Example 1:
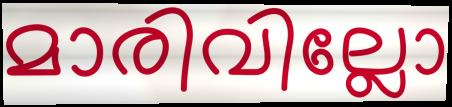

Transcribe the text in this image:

മാരിവില്ലോ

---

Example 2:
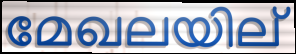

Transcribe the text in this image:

മേഖലയില്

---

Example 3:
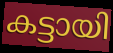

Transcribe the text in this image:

കട്ടായി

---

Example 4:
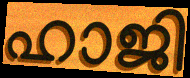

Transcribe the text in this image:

ഹാജി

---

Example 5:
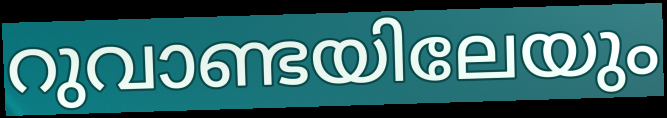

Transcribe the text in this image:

റുവാണ്ടയിലേയും